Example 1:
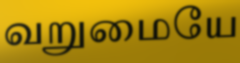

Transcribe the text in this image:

வறுமையே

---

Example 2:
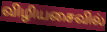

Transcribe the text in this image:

விழியசைவில்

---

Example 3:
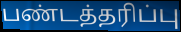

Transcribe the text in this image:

பண்டத்தரிப்பு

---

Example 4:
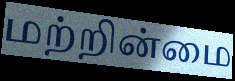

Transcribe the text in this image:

மற்றின்மை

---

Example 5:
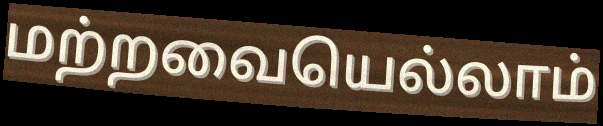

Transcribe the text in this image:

மற்றவையெல்லாம்